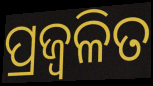
ପ୍ରଜ୍ୱଳିତ